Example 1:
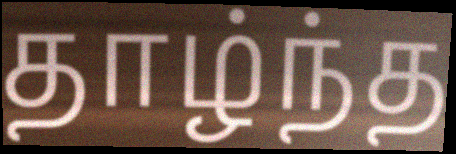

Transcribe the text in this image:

தாழ்ந்த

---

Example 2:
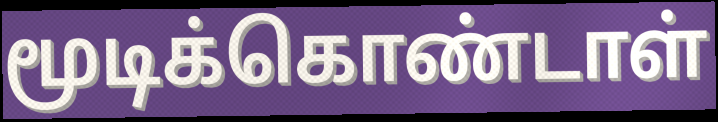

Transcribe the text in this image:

மூடிக்கொண்டாள்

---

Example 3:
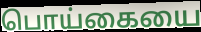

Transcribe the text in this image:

பொய்கையை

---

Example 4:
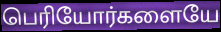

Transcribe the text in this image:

பெரியோர்களையே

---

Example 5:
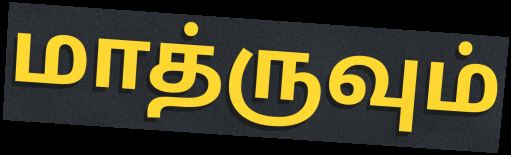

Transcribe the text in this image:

மாத்ருவும்